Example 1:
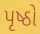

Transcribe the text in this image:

પૃષ્ઠો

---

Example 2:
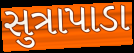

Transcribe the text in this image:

સુત્રાપાડા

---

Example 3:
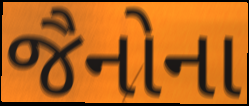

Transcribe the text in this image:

જૈનોના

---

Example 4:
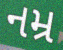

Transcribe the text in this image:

નમ્ર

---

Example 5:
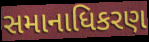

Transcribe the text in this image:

સમાનાધિકરણ